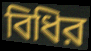
বিধির